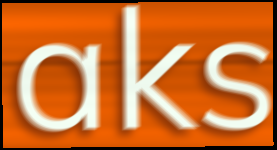
aks